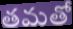
తమతో